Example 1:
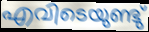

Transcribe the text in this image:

എവിടെയുണ്ടു്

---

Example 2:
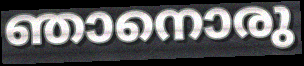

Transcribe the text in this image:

ഞാനൊരു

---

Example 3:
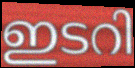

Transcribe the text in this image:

ഇടറി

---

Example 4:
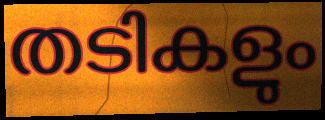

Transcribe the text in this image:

തടികളും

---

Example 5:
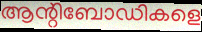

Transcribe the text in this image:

ആന്റിബോഡികളെ